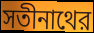
সতীনাথের